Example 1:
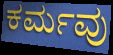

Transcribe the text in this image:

ಕರ್ಮವು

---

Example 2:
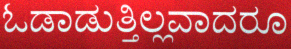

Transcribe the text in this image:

ಓಡಾಡುತ್ತಿಲ್ಲವಾದರೂ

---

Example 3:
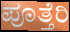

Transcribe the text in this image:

ಪೂತ್ತೆರಿ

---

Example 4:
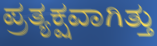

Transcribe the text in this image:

ಪ್ರತ್ಯಕ್ಷವಾಗಿತ್ತು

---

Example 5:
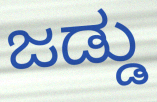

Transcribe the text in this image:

ಜಡ್ಡು